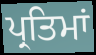
ਪ੍ਰਤਿਮਾਂ